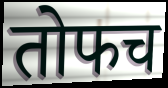
तोफच